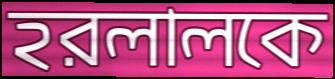
হরলালকে